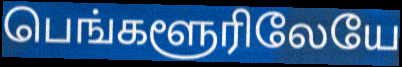
பெங்களூரிலேயே